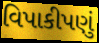
વિપાકીપણું